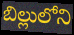
బిల్లులోని